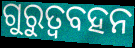
ଗୁରୁତ୍ୱବହନ